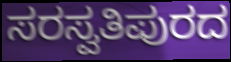
ಸರಸ್ವತಿಪುರದ